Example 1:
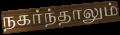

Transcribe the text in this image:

நகர்ந்தாலும்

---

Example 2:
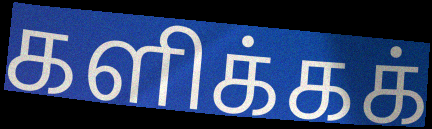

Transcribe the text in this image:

களிக்கக்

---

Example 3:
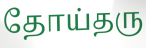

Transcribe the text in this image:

தோய்தரு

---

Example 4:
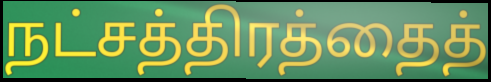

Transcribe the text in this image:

நட்சத்திரத்தைத்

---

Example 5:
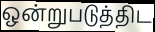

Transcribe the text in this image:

ஒன்றுபடுத்திட